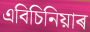
এবিচিনিয়াৰ